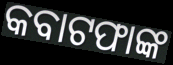
କବାଟଫାଙ୍କ